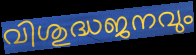
വിശുദ്ധജനവും